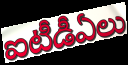
ఐటీడీఏలు